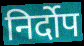
निर्दोप